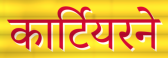
कार्टियरने